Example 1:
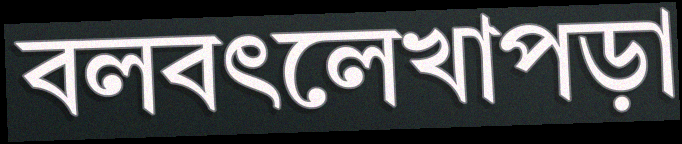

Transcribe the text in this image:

বলবৎলেখাপড়া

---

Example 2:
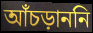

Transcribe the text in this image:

আঁচড়াননি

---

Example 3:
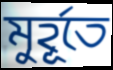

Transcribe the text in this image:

মুর্হূতে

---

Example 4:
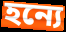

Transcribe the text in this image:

হন্যে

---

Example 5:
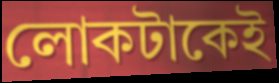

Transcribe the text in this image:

লোকটাকেই